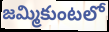
జమ్మికుంటలో